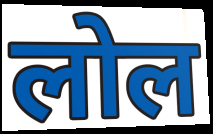
लोल